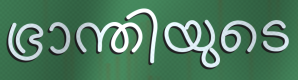
ഭ്രാന്തിയുടെ